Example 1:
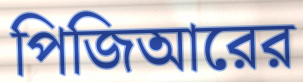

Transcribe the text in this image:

পিজিআরের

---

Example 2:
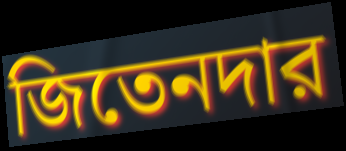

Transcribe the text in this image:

জিতেনদার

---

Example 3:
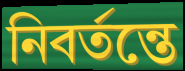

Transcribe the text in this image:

নিবর্তন্তে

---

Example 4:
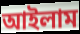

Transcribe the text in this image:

আইলাম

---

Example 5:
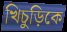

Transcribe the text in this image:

খিচুড়িকে